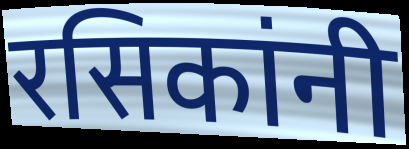
रसिकांनी